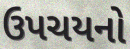
ઉપચયનો